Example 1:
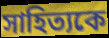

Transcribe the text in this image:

সাহিত্যকে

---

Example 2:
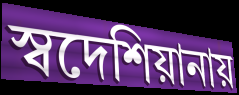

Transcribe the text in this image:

স্বদেশিয়ানায়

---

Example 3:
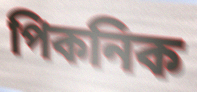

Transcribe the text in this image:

পিকনিক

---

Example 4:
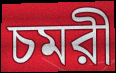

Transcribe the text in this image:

চমরী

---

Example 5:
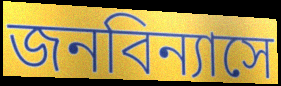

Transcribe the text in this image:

জনবিন্যাসে